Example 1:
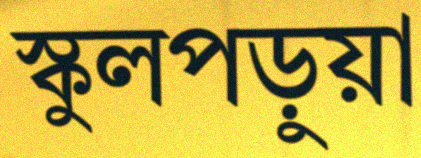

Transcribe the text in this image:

স্কুলপড়ুয়া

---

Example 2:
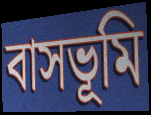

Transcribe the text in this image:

বাসভূমি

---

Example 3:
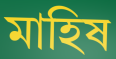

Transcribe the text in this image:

মাহিষ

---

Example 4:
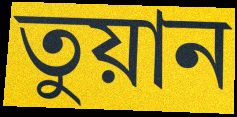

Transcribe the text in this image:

তুয়ান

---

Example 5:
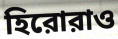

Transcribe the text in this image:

হিরোরাও